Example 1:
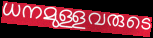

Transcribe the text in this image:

ധനമുള്ളവരുടെ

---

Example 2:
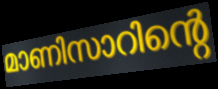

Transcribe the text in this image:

മാണിസാറിന്റെ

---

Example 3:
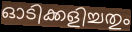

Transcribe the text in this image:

ഓടിക്കളിച്ചതും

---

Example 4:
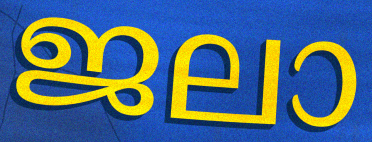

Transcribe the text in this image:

ജലാ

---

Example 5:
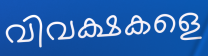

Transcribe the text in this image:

വിവക്ഷകളെ